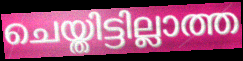
ചെയ്തിട്ടില്ലാത്ത